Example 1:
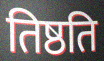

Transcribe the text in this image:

तिष्ठति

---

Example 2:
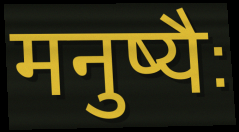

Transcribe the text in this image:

मनुष्यैः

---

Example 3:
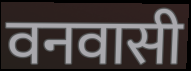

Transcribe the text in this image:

वनवासी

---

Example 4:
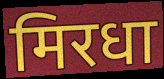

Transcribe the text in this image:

मिरधा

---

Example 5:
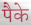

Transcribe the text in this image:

पैके